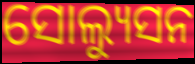
ସୋଲ୍ୟୁସନ